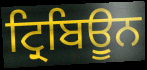
ਟ੍ਰਿਬਿਉੂਨ